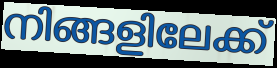
നിങ്ങളിലേക്ക്